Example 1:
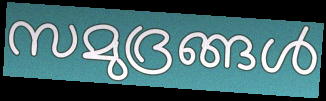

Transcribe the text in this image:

സമുദ്രങ്ങൾ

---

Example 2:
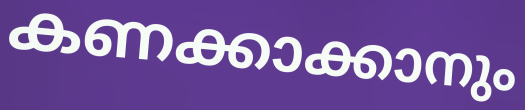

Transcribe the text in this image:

കണക്കാക്കാനും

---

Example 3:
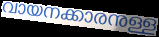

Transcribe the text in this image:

വായനക്കാരനുള്ള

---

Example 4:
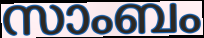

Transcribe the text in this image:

സാംബം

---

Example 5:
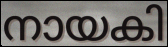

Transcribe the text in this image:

നായകി